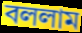
বললাম